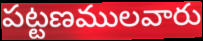
పట్టణములవారు